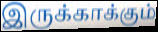
இருக்காக்கும்